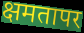
क्षमतापर